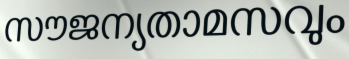
സൗജന്യതാമസവും